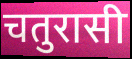
चतुरासी